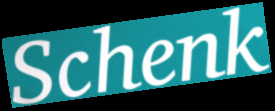
Schenk